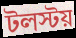
টলস্টয়